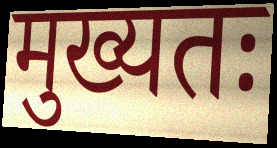
मुख्यतः